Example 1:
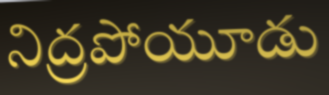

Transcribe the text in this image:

నిద్రపోయూడు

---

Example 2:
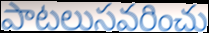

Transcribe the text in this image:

పాటలుసవరించు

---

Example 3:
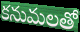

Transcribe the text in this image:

కనుమలతో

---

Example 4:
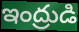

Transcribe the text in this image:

ఇంద్రుడి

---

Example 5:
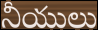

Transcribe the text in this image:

నీయులు